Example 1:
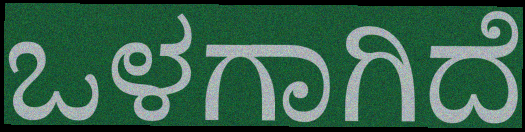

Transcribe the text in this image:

ಒಳಗಾಗಿದೆ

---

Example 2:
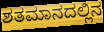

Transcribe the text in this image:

ಶತಮಾನದಲ್ಲಿನ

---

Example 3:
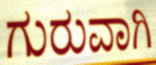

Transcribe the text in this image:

ಗುರುವಾಗಿ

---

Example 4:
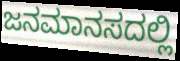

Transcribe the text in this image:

ಜನಮಾನಸದಲ್ಲಿ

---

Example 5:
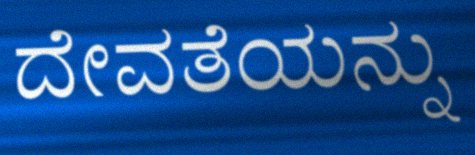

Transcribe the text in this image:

ದೇವತೆಯನ್ನು